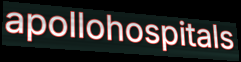
apollohospitals